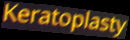
Keratoplasty